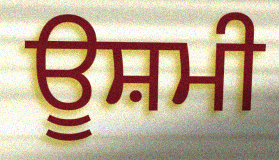
ਊਸ਼ਮੀ